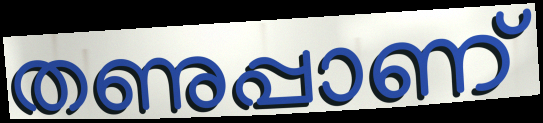
തണുപ്പാണ്